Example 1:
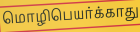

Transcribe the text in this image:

மொழிபெயர்க்காது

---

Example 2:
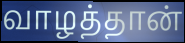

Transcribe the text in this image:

வாழத்தான்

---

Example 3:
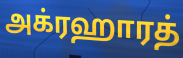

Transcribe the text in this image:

அக்ரஹாரத்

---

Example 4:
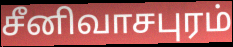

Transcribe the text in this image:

சீனிவாசபுரம்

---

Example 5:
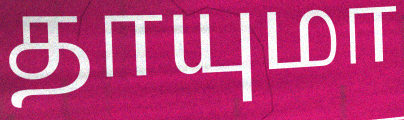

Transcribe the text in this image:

தாயுமா